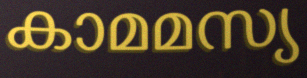
കാമമസ്യ